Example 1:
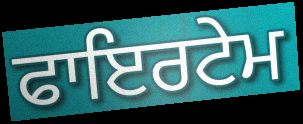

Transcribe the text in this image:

ਫਾਇਰਟੇਮ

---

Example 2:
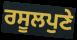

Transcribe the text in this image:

ਰਸੂਲਪੁਣੇ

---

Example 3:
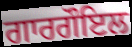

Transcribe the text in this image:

ਗਾਰਗੌਇਲ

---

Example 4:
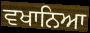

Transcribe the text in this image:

ਵਖਾਨਿਆ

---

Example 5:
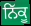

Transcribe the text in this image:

ਨਿੱਕੂ